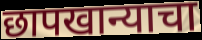
छापखान्याचा